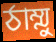
ঠাম্মু